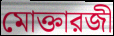
মোক্তারজী